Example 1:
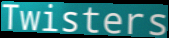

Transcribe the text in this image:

Twisters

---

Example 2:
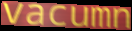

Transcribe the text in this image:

vacumn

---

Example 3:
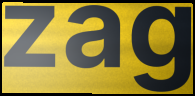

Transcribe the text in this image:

zag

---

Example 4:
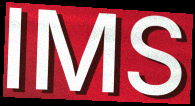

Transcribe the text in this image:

IMS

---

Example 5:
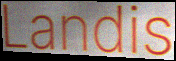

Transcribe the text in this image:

Landis